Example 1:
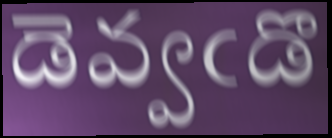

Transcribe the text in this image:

డెవ్వఁడొ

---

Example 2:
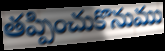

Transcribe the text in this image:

తప్పించుకొనుము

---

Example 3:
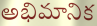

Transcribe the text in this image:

అభిమానిక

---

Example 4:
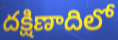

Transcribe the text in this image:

దక్షిణాదిలో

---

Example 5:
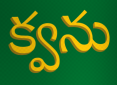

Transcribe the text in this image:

క్వను